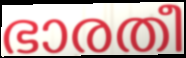
ഭാരതീ